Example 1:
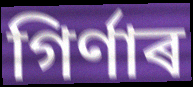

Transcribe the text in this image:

গিৰ্ণাৰ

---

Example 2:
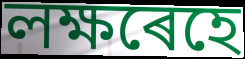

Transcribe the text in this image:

লক্ষৰেহে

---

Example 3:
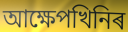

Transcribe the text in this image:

আক্ষেপখিনিৰ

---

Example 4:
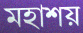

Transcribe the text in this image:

মহাশয়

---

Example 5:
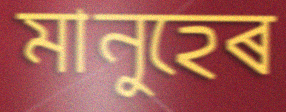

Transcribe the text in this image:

মানুহেৰ